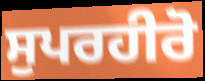
ਸੁਪਰਹੀਰੋ